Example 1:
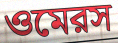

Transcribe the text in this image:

ওমেরস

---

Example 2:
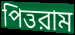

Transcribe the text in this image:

পিত্তরাম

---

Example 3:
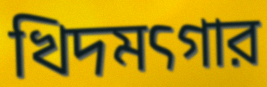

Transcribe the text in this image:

খিদমৎগার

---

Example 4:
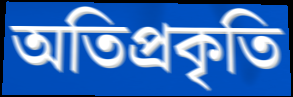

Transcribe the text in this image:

অতিপ্রকৃতি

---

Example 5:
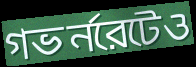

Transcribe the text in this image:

গভর্নরেটেও